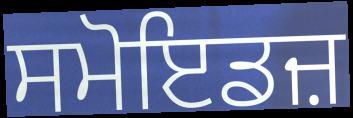
ਸਮੋਇਡਜ਼